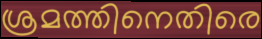
ശ്രമത്തിനെതിരെ